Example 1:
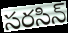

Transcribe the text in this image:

సరసిన్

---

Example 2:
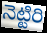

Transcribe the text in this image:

నెట్టిరి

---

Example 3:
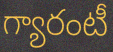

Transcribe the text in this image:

గ్యారంటీ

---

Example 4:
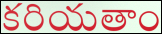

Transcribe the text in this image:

కరియతాం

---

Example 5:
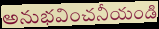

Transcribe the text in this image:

అనుభవించనీయండి